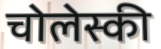
चोलेस्की